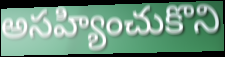
అసహ్యించుకొని